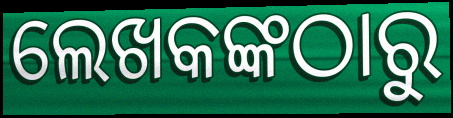
ଲେଖକଙ୍କଠାରୁ